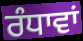
ਰੰਧਾਵਾਂ